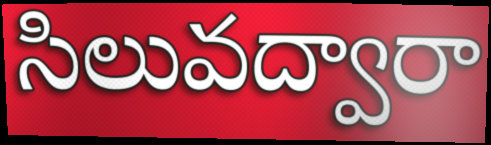
సిలువద్వారా